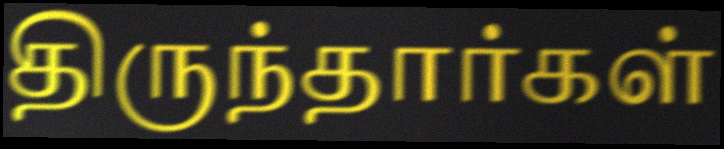
திருந்தார்கள்